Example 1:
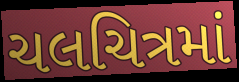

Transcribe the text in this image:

ચલચિત્રમાં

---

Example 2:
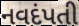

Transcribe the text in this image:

નવદંપતી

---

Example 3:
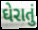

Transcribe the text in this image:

ઘેરાતું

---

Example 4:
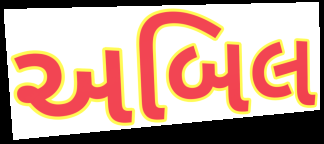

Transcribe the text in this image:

અબિલ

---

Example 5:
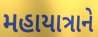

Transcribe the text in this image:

મહાયાત્રાને